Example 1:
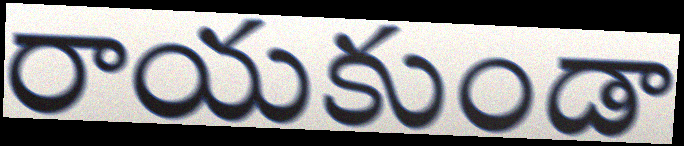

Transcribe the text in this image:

రాయకుండా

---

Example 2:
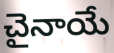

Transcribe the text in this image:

చైనాయే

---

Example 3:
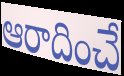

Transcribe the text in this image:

ఆరాదించే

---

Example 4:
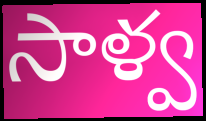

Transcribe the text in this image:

సాళ్వ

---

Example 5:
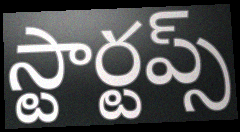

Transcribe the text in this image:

స్టార్టప్స్